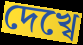
দেখ্বে